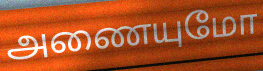
அணையுமோ